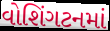
વોશિંગટનમાં